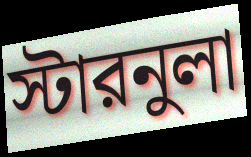
স্টারনুলা